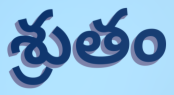
శ్రుతం